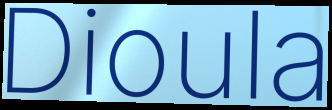
Dioula